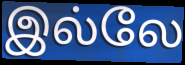
இல்லே